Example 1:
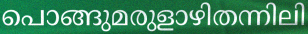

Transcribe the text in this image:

പൊങ്ങുമരുളാഴിതന്നിലി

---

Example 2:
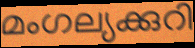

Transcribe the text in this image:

മംഗല്യക്കുറി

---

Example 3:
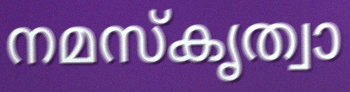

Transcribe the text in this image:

നമസ്കൃത്വാ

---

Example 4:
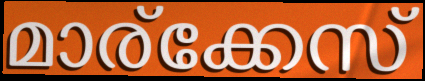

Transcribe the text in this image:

മാര്ക്കേസ്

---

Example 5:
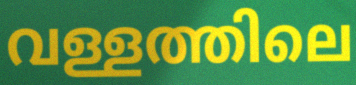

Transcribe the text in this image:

വള്ളത്തിലെ